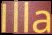
Illa